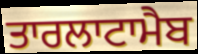
ਤਾਰਲਾਟਾਮੈਬ